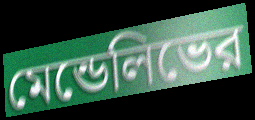
মেন্ডেলিভের